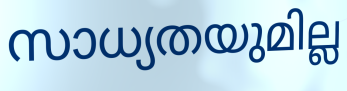
സാധ്യതയുമില്ല